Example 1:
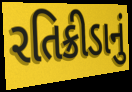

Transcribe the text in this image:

રતિક્રીડાનું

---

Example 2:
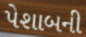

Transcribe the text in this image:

પેશાબની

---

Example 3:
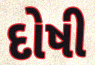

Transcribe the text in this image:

દોષી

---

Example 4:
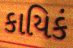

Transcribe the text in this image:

કાયિકં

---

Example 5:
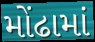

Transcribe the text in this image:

મોંઢામાં